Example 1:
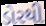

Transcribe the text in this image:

ડોરથી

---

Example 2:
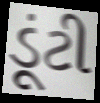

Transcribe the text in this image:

ડૂંટી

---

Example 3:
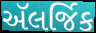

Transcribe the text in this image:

ઍલર્જિક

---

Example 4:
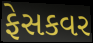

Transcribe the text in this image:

ફેસકવર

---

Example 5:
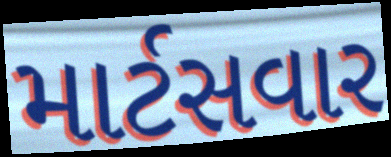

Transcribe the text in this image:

માર્ટસવાર